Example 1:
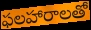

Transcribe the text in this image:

ఫలహారాలతో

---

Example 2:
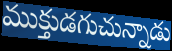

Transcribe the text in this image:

ముక్తుడగుచున్నాడు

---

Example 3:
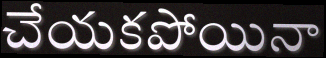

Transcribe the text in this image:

చేయకపోయినా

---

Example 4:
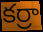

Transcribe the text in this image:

కర్రా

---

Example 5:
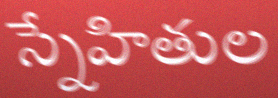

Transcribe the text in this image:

స్నేహితుల